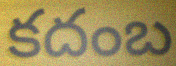
కదంబ